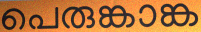
പെരുങ്കാങ്ക